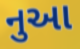
નુઆ